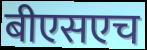
बीएसएच